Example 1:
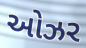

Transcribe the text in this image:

ઓઝર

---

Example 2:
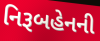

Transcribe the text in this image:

નિરૂબહેનની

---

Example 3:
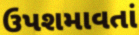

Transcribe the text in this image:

ઉપશમાવતાં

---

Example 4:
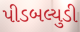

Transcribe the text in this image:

પીડબલ્યુડી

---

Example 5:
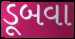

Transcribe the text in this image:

ડૂબવા